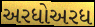
અરધોઅરધ